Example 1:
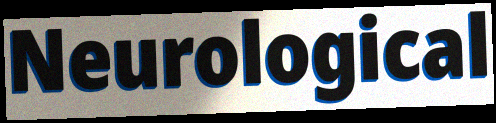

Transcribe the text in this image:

Neurological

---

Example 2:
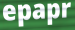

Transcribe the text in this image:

epapr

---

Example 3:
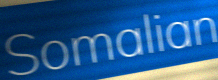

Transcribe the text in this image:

Somalian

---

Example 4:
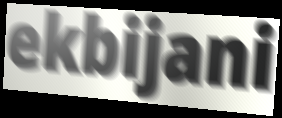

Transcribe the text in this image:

ekbijani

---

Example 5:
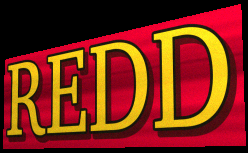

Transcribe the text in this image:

REDD